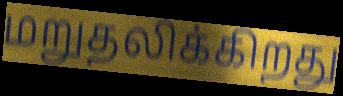
மறுதலிக்கிறது